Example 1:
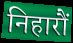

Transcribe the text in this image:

निहारौं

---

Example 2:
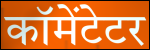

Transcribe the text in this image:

कॉमेंटेटर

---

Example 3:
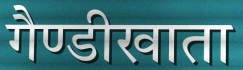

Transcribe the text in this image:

गैण्डीखाता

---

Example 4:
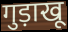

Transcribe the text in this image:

गुड़ाखू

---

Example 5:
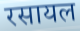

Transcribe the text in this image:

रसायल